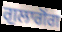
ਗੁਲਾਗੋਂਗ